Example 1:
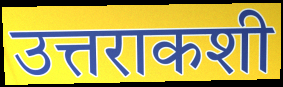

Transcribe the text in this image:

उत्तराकशी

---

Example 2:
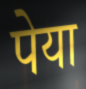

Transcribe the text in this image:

पेया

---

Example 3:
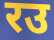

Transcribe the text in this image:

रउ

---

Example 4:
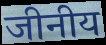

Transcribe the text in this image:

जीनीय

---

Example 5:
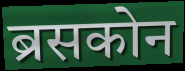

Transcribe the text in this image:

ब्रसकोन